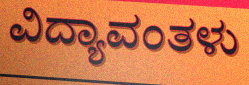
ವಿದ್ಯಾವಂತಳು